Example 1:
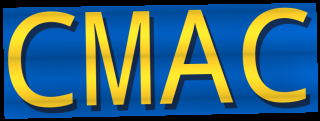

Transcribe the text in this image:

CMAC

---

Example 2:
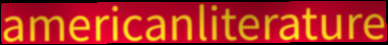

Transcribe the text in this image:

americanliterature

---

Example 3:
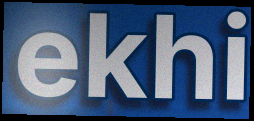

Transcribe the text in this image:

ekhi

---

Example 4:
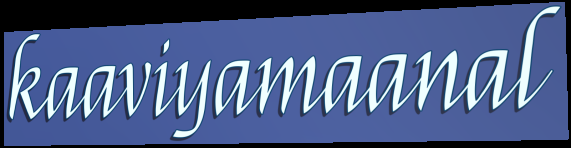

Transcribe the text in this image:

kaaviyamaanal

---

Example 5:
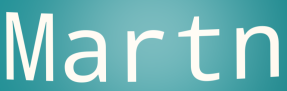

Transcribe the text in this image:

Martn